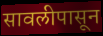
सावलीपासून